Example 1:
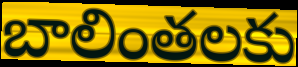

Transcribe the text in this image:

బాలింతలకు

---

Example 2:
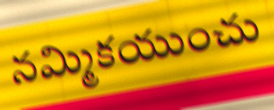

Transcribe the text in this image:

నమ్మికయుంచు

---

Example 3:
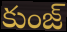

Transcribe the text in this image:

కుంజ్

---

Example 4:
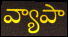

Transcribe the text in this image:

వ్యాపా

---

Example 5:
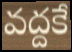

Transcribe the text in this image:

వద్దకే